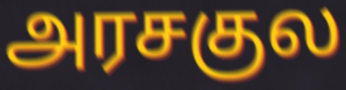
அரசகுல